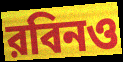
রবিনও